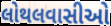
લોથલવાસીઓ